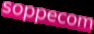
soppecom